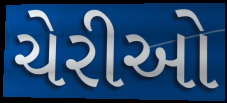
ચેરીઓ